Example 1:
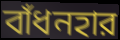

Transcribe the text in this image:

বাঁধনহার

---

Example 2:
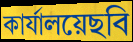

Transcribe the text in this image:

কার্যালয়েছবি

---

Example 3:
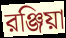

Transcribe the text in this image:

রঞ্জিয়া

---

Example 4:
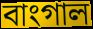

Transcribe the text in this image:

বাংগাল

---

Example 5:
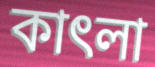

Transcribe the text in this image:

কাৎলা